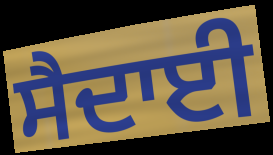
ਸੈਦਾਈ